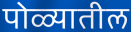
पोळ्यातील